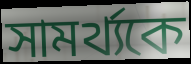
সামর্থ্যকে